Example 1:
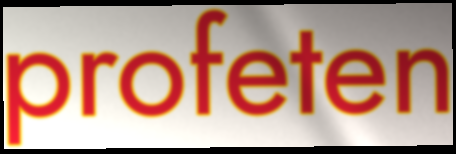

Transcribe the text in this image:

profeten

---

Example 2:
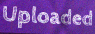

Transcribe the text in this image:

Uploaded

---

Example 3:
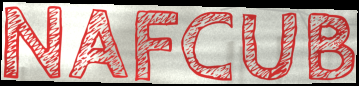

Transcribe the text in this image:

NAFCUB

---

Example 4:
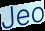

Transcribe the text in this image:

Jeo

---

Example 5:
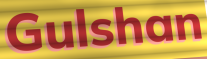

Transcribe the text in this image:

Gulshan